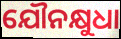
ଯୌନକ୍ଷୁଧା